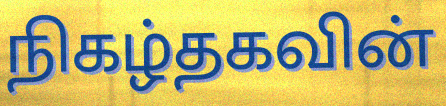
நிகழ்தகவின்